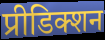
प्रीडिक्शन